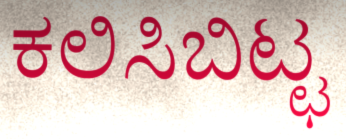
ಕಲಿಸಿಬಿಟ್ಟ